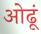
ओढूं